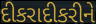
દીકરાદીકરીને